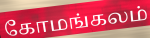
கோமங்கலம்